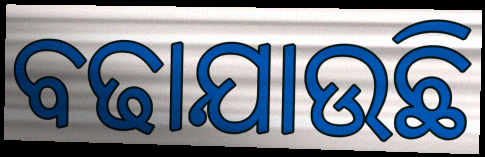
ବଢାଯାଉଛି